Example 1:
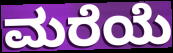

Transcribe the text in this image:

ಮರೆಯೆ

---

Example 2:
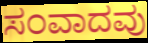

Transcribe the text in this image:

ಸಂವಾದವು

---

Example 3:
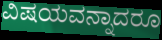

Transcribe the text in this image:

ವಿಷಯವನ್ನಾದರೂ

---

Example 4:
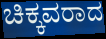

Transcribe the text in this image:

ಚಿಕ್ಕವರಾದ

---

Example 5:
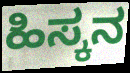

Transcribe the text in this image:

ಹಿಸ್ಕನ